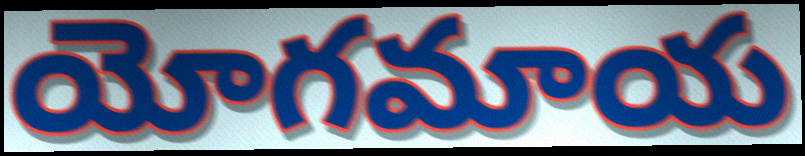
యోగమాయ